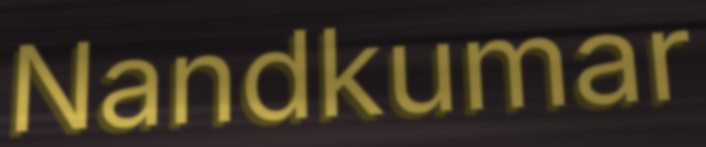
Nandkumar